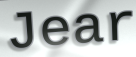
Jear